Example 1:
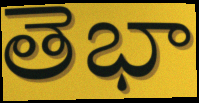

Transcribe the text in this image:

తెభా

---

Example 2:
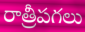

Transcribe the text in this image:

రాత్రీపగలు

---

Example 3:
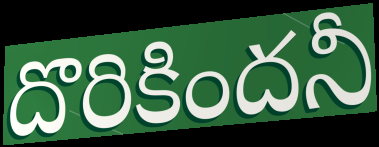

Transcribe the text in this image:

దొరికిందనీ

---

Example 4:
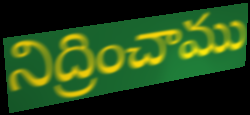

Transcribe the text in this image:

నిద్రించాము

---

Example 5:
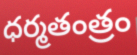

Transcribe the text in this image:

ధర్మతంత్రం